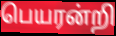
பெயரன்றி